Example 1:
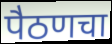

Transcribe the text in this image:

पैठणचा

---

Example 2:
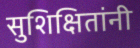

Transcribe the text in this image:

सुशिक्षितांनी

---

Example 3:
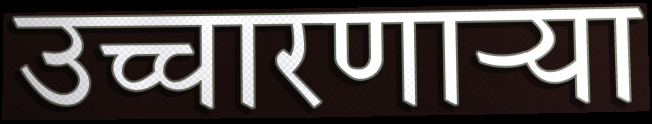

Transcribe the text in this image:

उच्चारणाऱ्या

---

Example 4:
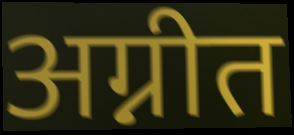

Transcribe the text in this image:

अग्नीत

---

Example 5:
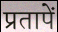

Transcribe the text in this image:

प्रतापें